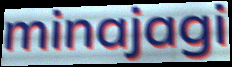
minajagi